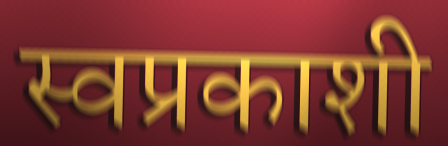
स्वप्रकाशी